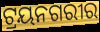
ଟ୍ରୟନଗରୀର